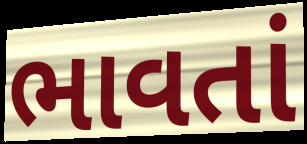
ભાવતાં